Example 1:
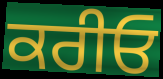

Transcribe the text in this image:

ਕਰੀਓ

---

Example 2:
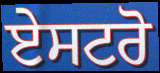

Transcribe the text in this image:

ਏਸਟਰੋ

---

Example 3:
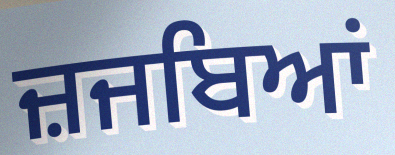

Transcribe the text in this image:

ਜ਼ਜਬਿਆਂ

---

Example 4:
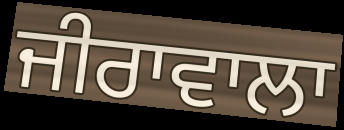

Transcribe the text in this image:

ਜੀਰਾਵਾਲਾ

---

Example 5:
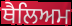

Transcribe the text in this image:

ਥੈਲਿਅਮ